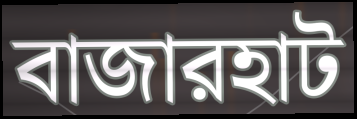
বাজারহাট